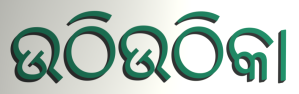
ଉଠିଉଠିକା